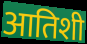
आतिशी